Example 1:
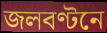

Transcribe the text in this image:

জলবণ্টনে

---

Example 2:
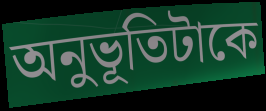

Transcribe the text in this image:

অনুভূতিটাকে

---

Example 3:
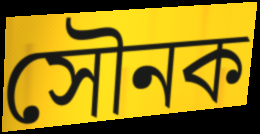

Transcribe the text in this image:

সৌনক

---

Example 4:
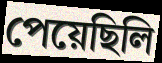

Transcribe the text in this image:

পেয়েছিলি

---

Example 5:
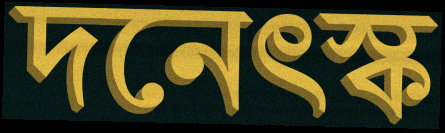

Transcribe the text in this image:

দনেৎস্ক